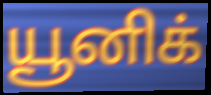
யூனிக்